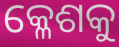
କ୍ଳେଶକୁ